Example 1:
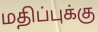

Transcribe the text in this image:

மதிப்புக்கு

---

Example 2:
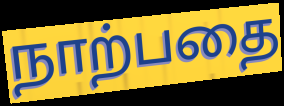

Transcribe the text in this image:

நாற்பதை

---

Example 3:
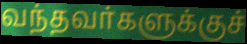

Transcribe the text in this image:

வந்தவர்களுக்குச்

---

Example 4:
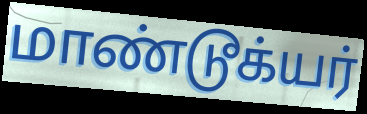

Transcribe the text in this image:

மாண்டூக்யர்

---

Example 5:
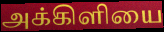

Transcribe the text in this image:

அக்கிளியை